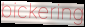
bickering